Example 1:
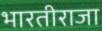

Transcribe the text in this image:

भारतीराजा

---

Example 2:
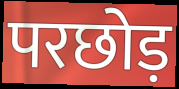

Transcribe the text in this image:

परछोड़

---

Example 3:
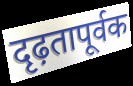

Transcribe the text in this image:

दृढ़तापूर्वक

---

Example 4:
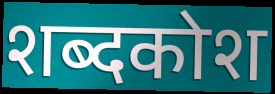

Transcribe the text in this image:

शब्दकोश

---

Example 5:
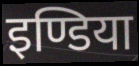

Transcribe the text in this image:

इण्डिया